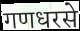
गणधरसे